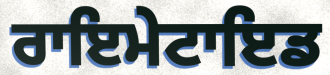
ਰਾਇਮੇਟਾਇਡ